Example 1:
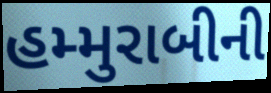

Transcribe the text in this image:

હમ્મુરાબીની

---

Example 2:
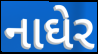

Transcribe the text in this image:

નાઘેર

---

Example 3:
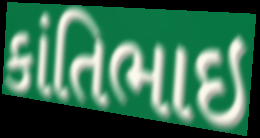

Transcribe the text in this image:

કાંતિભાઇ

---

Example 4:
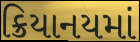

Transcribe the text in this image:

ક્રિયાનયમાં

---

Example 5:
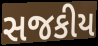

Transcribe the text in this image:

સજકીય